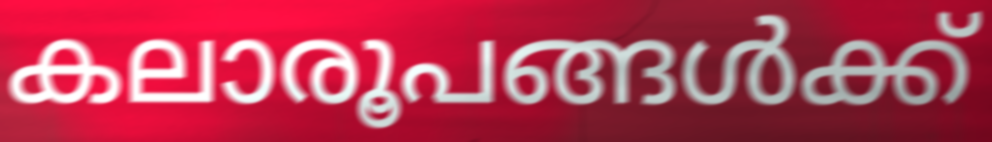
കലാരൂപങ്ങൾക്ക്